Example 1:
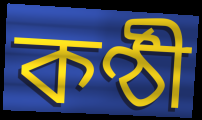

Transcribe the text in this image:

কণ্ঠী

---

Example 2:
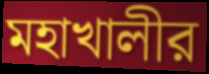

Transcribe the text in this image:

মহাখালীর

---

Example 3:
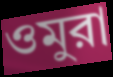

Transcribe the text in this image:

ওমুরা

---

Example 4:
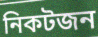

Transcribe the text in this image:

নিকটজন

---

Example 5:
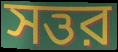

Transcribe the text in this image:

সত্তর